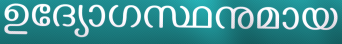
ഉദ്യോഗസ്ഥനുമായ